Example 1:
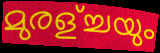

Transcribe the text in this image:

മുരള്ച്ചയും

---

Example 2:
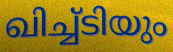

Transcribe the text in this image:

ഖിച്ച്ടിയും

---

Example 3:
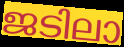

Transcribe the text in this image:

ജടിലാ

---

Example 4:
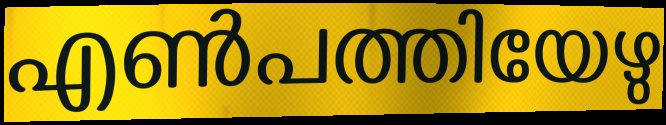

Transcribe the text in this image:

എൺപത്തിയേഴു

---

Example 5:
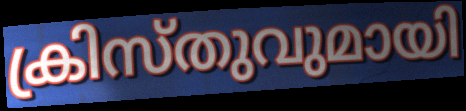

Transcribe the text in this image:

ക്രിസ്തുവുമായി